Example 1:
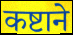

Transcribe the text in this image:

कष्टाने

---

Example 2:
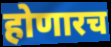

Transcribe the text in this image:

होणारच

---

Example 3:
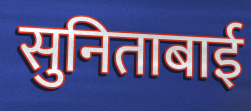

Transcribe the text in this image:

सुनिताबाई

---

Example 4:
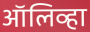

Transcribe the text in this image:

ऑलिव्हा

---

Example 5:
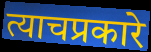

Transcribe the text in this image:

त्याचप्रकारे